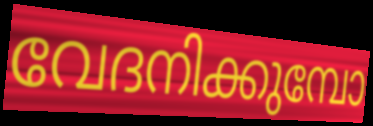
വേദനിക്കുമ്പോ